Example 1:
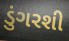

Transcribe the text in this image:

ડુંગરશી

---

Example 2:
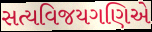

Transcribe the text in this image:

સત્યવિજયગણિએ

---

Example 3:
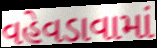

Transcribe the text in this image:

વહેવડાવામાં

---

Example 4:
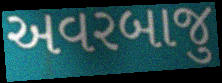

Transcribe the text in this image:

અવરબાજુ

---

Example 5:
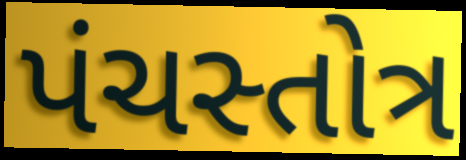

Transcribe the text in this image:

પંચસ્તોત્ર